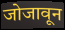
जोजावून